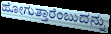
ಹೋಗುತ್ತಾರೆಂಬುದನ್ನು